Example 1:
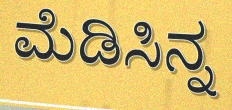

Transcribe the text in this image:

ಮೆಡಿಸಿನ್ನ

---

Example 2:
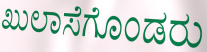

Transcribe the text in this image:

ಖುಲಾಸೆಗೊಂಡರು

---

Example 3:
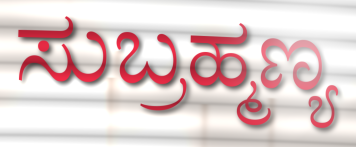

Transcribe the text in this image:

ಸುಬ್ರಹ್ಮಣ್ಯ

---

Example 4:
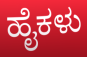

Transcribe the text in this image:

ಹೈಕಳು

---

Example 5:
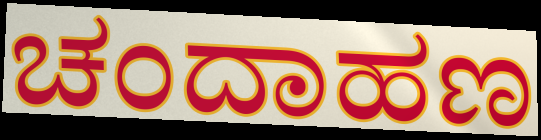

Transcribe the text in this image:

ಚಂದಾಹಣ